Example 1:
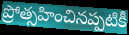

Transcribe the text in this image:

ప్రోత్సహించినప్పటికీ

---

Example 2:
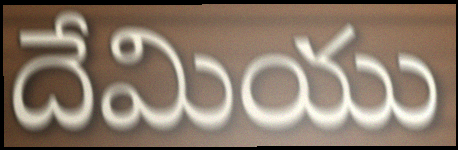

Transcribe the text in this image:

దేమియు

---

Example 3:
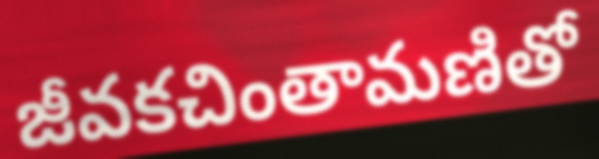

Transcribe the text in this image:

జీవకచింతామణితో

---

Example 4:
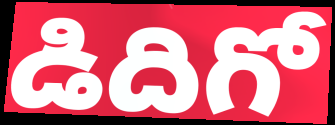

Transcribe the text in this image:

డిదిగో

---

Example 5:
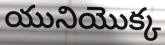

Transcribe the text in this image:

యునియొక్క